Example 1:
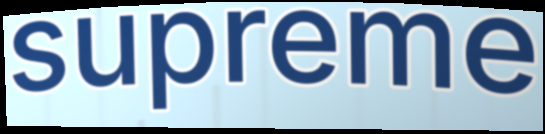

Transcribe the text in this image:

supreme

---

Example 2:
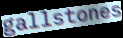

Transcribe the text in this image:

gallstones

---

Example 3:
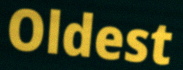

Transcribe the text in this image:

Oldest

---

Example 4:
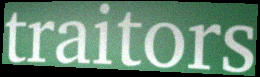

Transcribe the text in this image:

traitors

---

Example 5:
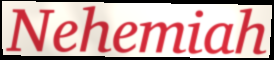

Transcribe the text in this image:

Nehemiah